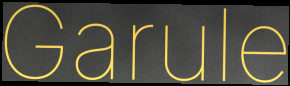
Garule